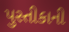
પુસ્તીકાની